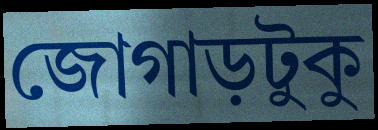
জোগাড়টুকু